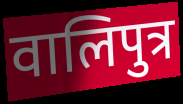
वालिपुत्र